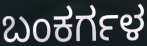
ಬಂಕರ್ಗಳ